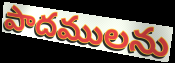
పాదములను